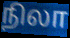
நிலா